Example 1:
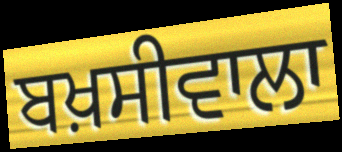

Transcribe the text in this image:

ਬਖ਼ਸੀਵਾਲਾ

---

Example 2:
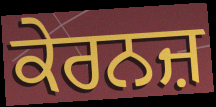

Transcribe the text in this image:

ਕੇਰਨਜ਼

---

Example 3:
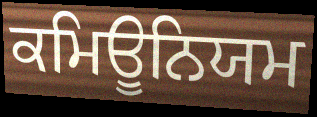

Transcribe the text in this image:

ਕਮਿਊਨਿਯਮ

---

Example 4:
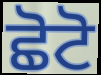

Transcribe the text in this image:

ਛੋਟੋ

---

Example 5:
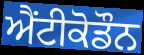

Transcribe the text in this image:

ਐਂਟੀਕੋਡੌਨ